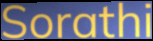
Sorathi